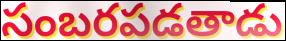
సంబరపడతాడు